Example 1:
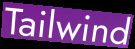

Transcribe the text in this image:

Tailwind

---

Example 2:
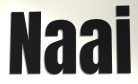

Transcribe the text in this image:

Naai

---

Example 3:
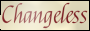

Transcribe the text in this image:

Changeless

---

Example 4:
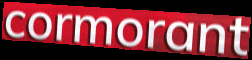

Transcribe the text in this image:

cormorant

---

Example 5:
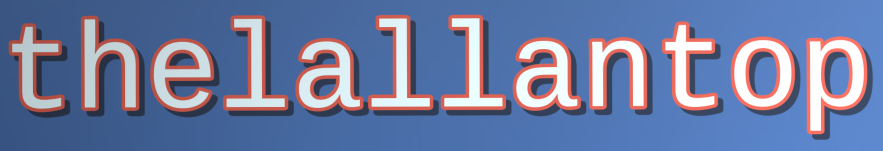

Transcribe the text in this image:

thelallantop